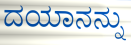
ದಯಾನನ್ನು